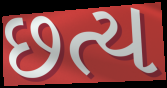
છત્ય